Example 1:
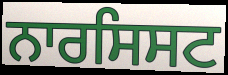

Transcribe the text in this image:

ਨਾਰਸਿਸਟ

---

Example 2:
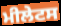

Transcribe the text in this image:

ਮੀਲੇਟਸ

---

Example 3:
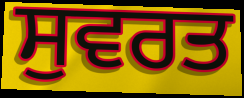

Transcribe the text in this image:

ਸੁਵਰਤ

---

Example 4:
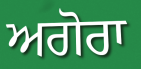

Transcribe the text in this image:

ਅਗੋਰਾ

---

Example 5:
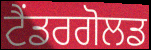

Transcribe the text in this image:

ਟੈਂਡਰਗੋਲਡ